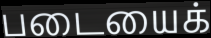
படையைக்